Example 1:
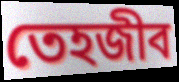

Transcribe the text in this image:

তেহজীব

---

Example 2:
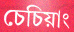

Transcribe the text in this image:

চেচিয়াং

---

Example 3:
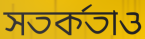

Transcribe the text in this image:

সতর্কতাও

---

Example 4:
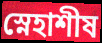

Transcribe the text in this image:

স্নেহাশীষ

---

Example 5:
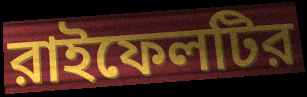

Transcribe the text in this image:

রাইফেলটির